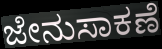
ಜೇನುಸಾಕಣೆ